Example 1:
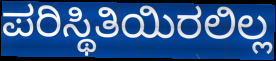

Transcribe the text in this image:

ಪರಿಸ್ಥಿತಿಯಿರಲಿಲ್ಲ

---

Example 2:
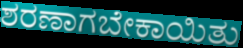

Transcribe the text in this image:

ಶರಣಾಗಬೇಕಾಯಿತು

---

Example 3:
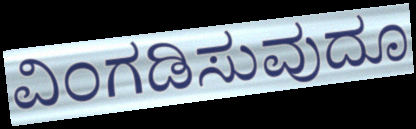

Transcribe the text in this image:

ವಿಂಗಡಿಸುವುದೂ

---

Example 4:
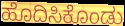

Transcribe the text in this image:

ಹೊದಿಸಿಕೊಂಡು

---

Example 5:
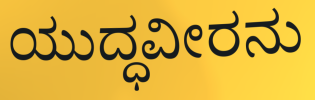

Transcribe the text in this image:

ಯುದ್ಧವೀರನು